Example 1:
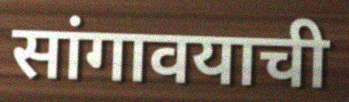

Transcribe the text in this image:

सांगावयाची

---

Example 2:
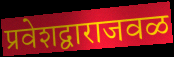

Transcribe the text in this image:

प्रवेशद्वाराजवळ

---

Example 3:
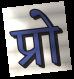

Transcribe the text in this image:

प्रो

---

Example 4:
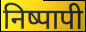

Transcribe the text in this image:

निष्पापी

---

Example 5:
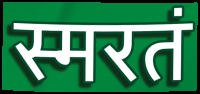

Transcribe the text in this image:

स्मरतं